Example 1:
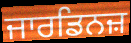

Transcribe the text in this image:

ਜਾਰਡਿਨਜ਼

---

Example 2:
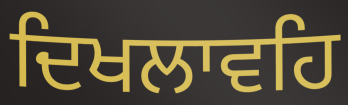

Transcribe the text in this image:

ਦਿਖਲਾਵਹਿ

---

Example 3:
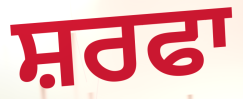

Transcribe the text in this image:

ਸ਼ਰਫਾ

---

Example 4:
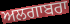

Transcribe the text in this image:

ਅਲਗਾਬਰਾ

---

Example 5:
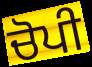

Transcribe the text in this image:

ਚੋਪੀ